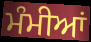
ਮੰਮੀਆਂ